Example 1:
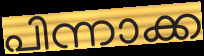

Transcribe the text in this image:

പിന്നാക്ക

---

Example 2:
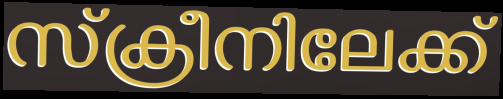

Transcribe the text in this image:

സ്‌ക്രീനിലേക്ക്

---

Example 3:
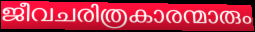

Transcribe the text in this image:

ജീവചരിത്രകാരന്മാരും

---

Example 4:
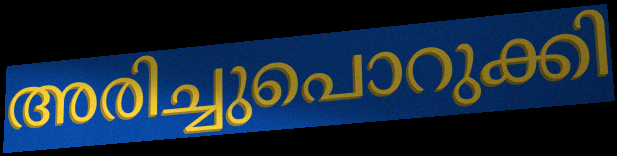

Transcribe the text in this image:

അരിച്ചുപൊറുക്കി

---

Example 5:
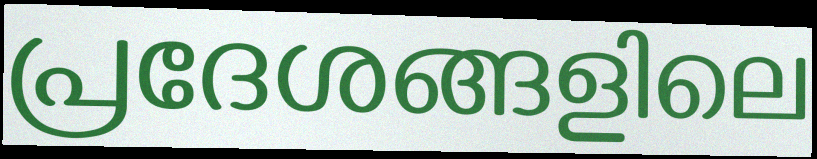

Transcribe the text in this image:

പ്രദേശങ്ങളിലെ